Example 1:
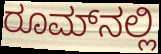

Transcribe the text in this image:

ರೂಮ್‌ನಲ್ಲಿ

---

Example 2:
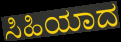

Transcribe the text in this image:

ಸಿಹಿಯಾದ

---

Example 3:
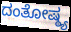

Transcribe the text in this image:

ದಂತೋಷ್ಠ್ಯ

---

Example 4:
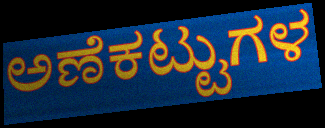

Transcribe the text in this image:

ಅಣೆಕಟ್ಟುಗಳ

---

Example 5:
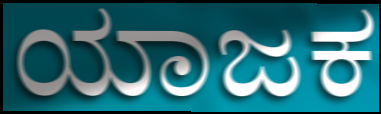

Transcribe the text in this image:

ಯಾಜಕ